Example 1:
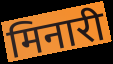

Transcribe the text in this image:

मिनारी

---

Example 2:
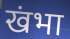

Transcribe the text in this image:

खंभा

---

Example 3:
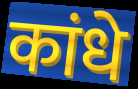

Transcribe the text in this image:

कांधे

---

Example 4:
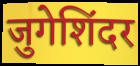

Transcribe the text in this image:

जुगेशिंदर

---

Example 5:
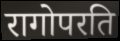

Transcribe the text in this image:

रागोपरति